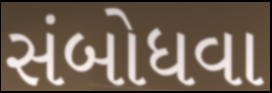
સંબોધવા